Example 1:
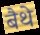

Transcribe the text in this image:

बैथे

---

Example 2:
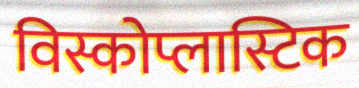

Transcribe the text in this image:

विस्कोप्लास्टिक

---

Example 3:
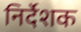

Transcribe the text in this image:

निर्देशक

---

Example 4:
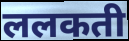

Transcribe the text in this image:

ललकती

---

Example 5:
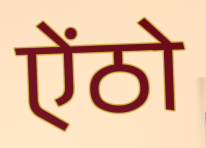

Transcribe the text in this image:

ऐंठो